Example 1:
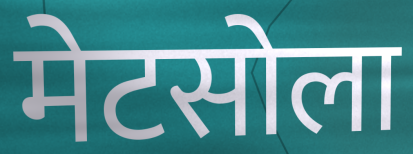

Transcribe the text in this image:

मेटसोला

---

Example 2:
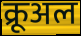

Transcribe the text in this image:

क्रूअल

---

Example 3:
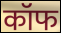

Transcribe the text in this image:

कॉफ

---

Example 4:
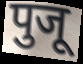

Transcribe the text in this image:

पुजू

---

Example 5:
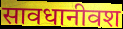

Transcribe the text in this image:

सावधानीवश